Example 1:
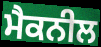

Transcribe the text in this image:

ਮੈਕਨੀਲ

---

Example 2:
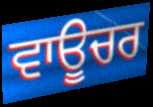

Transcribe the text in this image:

ਵਾਊਚਰ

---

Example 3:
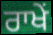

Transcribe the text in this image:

ਰਾਖੇਂ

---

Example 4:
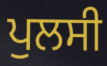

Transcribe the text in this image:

ਪੁਲਸੀ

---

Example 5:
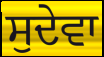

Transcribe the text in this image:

ਸੁਦੇਵਾ